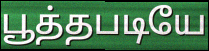
பூத்தபடியே